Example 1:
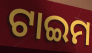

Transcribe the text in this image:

ଟାଇମ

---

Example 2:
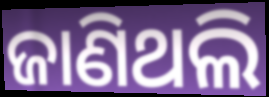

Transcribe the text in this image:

ଜାଣିଥଲି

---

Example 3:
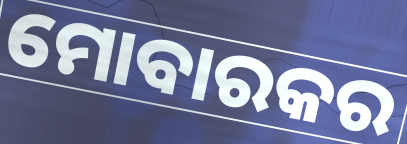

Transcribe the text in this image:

ମୋବାରକର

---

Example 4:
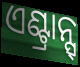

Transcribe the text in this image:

ଏଣ୍ଟ୍ରାନ୍ସ୍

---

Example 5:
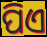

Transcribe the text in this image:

ପିଏ